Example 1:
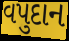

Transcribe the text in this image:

વપુદાન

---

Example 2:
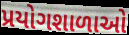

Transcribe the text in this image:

પ્રયોગશાળાઓ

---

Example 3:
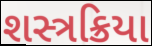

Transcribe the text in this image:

શસ્ત્રક્રિયા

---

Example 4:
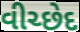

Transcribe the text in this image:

વીચ્છેદ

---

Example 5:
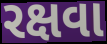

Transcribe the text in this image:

રક્ષવા